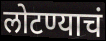
लोटण्याचं